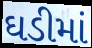
ઘડીમાં